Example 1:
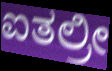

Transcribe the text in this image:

ಐತಲ್ರೀ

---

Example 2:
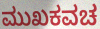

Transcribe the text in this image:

ಮುಖಕವಚ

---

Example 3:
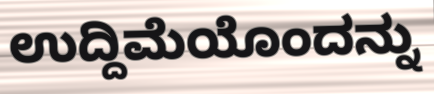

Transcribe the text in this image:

ಉದ್ದಿಮೆಯೊಂದನ್ನು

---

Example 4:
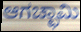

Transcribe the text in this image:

ಆಗಚ್ಛಾಮಿ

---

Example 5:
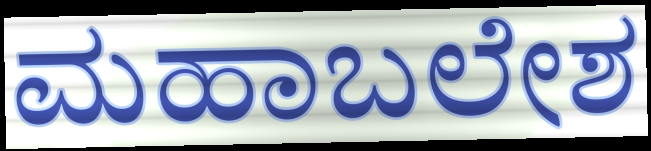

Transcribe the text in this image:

ಮಹಾಬಲೇಶ